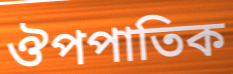
ঔপপাতিক